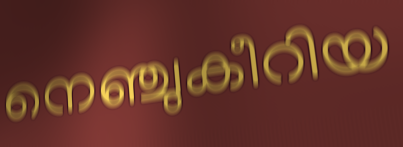
നെഞ്ചുകീറിയ